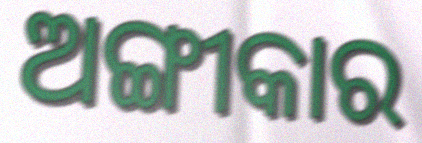
ଅଙ୍ଗୀକାର